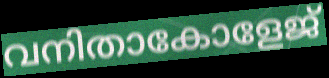
വനിതാകോളേജ്